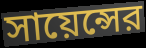
সায়েন্সের